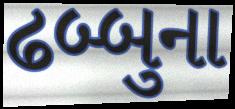
ઢબ્બુના